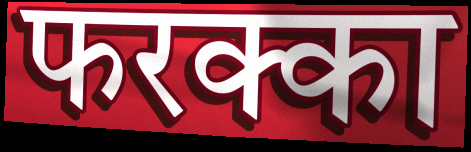
फरक्का